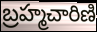
బ్రహ్మచారిణి